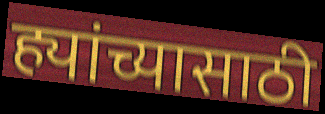
ह्यांच्यासाठी